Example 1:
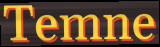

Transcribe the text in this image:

Temne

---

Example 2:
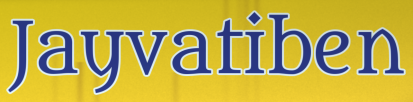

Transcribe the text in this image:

Jayvatiben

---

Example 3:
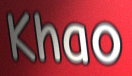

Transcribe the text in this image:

Khao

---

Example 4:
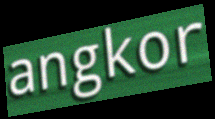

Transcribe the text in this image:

angkor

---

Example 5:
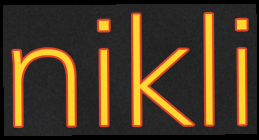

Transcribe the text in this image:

nikli